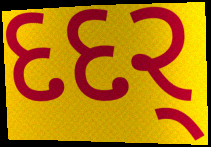
દદર્